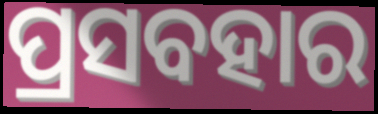
ପ୍ରସବହାର